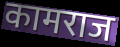
कामराज